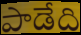
పాడేది